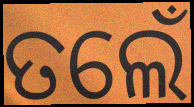
ତଲେଁ